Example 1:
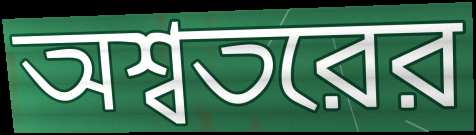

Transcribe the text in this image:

অশ্বতরের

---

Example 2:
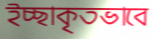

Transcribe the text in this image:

ইচ্ছাকৃতভাবে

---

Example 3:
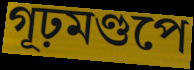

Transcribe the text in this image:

গূঢ়মণ্ডপে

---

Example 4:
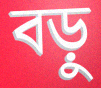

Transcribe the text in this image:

বড়ু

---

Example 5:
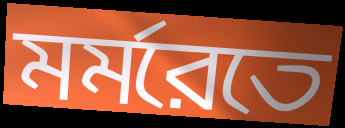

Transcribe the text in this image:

মর্মরেতে